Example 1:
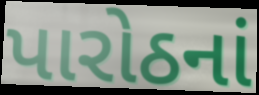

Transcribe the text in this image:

પારોઠનાં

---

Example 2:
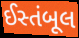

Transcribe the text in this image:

ઈસ્તંબૂલ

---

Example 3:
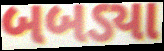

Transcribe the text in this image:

બબડ્યા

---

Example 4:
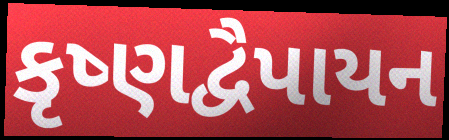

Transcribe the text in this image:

કૃષ્ણદ્વૈપાયન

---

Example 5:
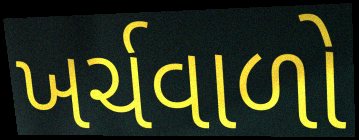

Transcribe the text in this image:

ખર્ચવાળો